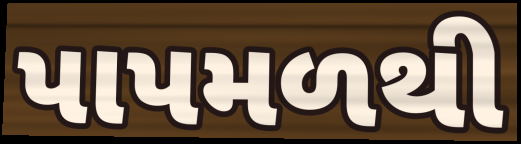
પાપમળથી